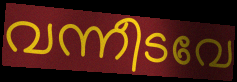
വന്നീടവേ